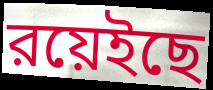
রয়েইছে